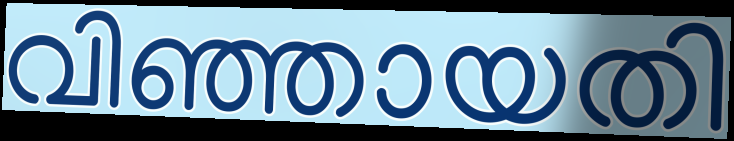
വിഞ്ഞായതി